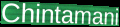
Chintamani